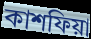
কাশফিয়া